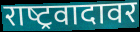
राष्ट्रवादावर